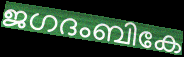
ജഗദംബികേ